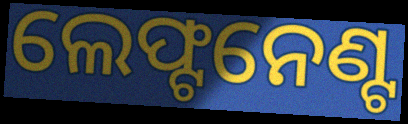
ଲେଫ୍ଟନେଣ୍ଟ